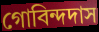
গোবিন্দদাস